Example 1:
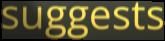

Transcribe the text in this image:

suggests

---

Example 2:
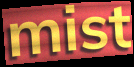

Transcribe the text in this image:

mist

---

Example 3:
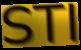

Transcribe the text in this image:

STI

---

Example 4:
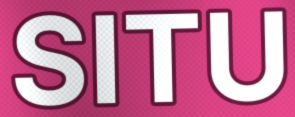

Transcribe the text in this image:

SITU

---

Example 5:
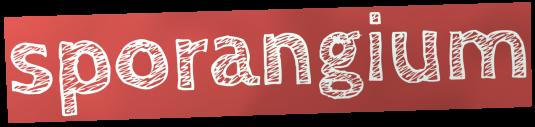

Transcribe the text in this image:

sporangium